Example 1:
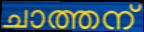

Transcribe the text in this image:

ചാത്തന്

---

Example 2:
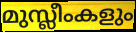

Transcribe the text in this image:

മുസ്ലീംകളും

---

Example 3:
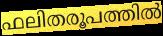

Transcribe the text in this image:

ഫലിതരൂപത്തിൽ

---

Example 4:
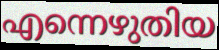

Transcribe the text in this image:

എന്നെഴുതിയ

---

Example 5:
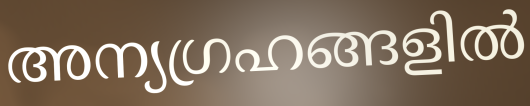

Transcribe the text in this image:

അന്യഗ്രഹങ്ങളിൽ